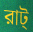
রাট্